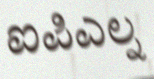
ಐಪಿಎಲ್ನ